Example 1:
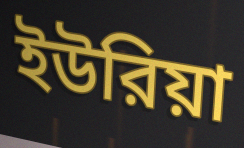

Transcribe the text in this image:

ইউরিয়া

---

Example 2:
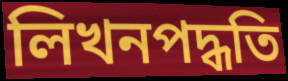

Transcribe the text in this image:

লিখনপদ্ধতি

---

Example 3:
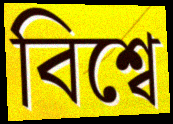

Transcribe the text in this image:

বিশ্বে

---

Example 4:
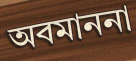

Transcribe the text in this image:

অবমাননা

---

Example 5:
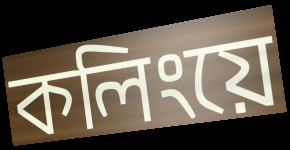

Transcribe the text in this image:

কলিংয়ে